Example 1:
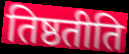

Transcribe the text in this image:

तिष्ठतीति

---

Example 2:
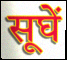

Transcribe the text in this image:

सूघें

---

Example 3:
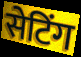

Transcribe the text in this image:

सेटिंग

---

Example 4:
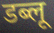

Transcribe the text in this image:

डब्लू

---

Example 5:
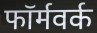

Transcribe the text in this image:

फॉर्मवर्क